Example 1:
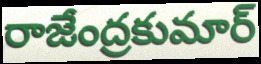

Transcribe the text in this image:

రాజేంద్రకుమార్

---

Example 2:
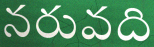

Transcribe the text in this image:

నరువది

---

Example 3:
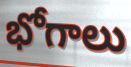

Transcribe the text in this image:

భోగాలు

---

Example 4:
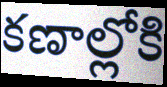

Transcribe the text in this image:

కణాల్లోకి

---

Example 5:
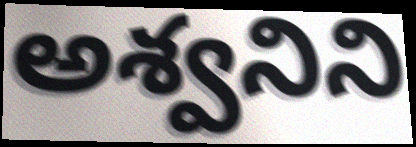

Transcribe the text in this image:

అశ్వనిని